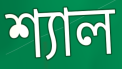
শ্যাল